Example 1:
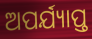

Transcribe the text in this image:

ଅପର୍ଯ୍ୟାପ୍ତ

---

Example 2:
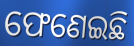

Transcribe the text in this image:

ଫେଣେଇଛି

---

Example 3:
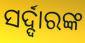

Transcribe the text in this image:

ସର୍ଦ୍ଦାରଙ୍କ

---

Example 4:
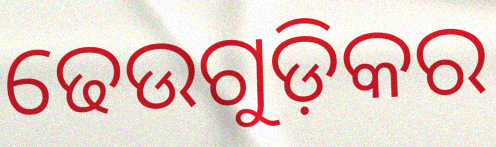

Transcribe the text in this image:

ଢେଉଗୁଡ଼ିକର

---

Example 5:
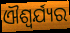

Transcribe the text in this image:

ଐଶ୍ଵର୍ଯ୍ୟର